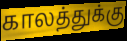
காலத்துக்கு